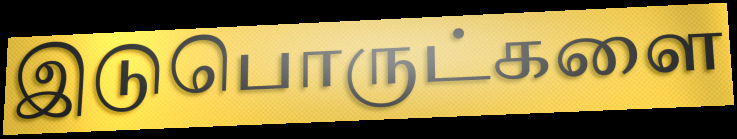
இடுபொருட்களை